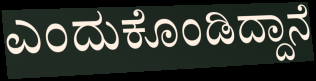
ಎಂದುಕೊಂಡಿದ್ದಾನೆ